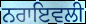
ਨਰਾਇਵਲੀ